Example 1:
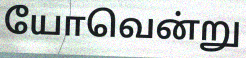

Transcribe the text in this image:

யோவென்று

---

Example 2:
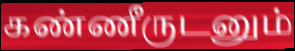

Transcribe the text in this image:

கண்ணீருடனும்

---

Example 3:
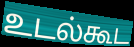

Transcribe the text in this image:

உடல்கூட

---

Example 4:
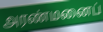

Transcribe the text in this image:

அரண்மனைப்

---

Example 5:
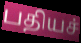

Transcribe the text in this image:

பதியச்